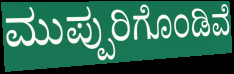
ಮುಪ್ಪುರಿಗೊಂಡಿವೆ